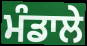
ਮੰਡਾਲੇ